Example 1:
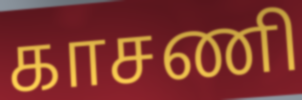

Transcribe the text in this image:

காசணி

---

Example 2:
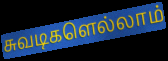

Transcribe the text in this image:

சுவடிகளெல்லாம்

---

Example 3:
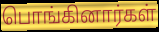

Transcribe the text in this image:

பொங்கினார்கள்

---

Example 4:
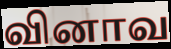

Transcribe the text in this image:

வினாவ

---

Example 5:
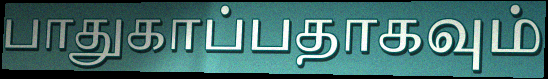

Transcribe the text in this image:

பாதுகாப்பதாகவும்